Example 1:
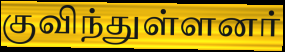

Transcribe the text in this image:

குவிந்துள்ளனர்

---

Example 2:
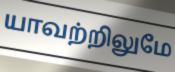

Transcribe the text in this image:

யாவற்றிலுமே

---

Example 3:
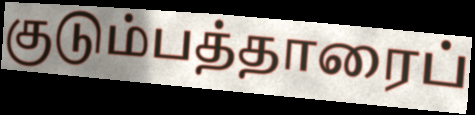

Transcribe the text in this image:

குடும்பத்தாரைப்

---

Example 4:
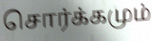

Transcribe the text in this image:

சொர்க்கமும்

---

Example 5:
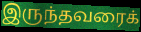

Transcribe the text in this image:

இருந்தவரைக்